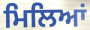
ਮਿਲਿਆਂ